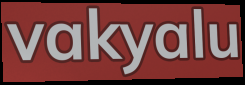
vakyalu